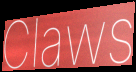
Claws